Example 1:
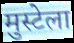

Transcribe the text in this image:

मुस्टेला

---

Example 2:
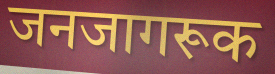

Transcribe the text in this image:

जनजागरूक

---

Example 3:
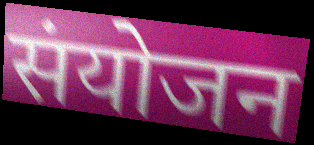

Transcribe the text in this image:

संयोजन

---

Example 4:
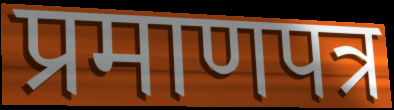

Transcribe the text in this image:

प्रमाणपत्र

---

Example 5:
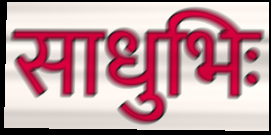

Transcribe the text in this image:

साधुभिः